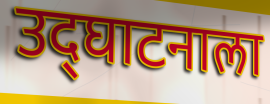
उद्घाटनाला